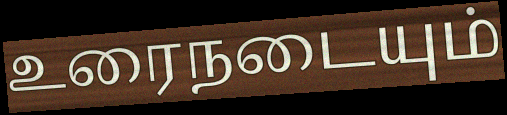
உரைநடையும்